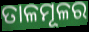
ତାଳମୂଳର